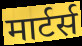
मार्टर्स